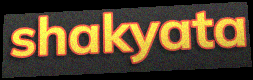
shakyata